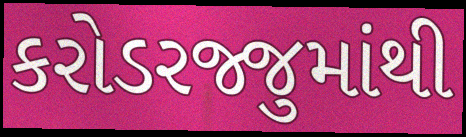
કરોડરજ્જુમાંથી